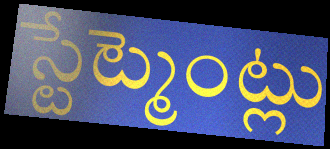
స్టేట్మెంట్లు